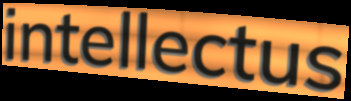
intellectus